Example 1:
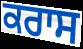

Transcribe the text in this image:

ਕਰਾਸ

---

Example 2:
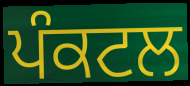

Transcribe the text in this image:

ਪੰਕਟਲ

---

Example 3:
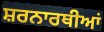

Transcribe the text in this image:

ਸ਼ਰਨਾਰਥੀਆਂ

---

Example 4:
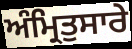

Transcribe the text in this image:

ਅੰਮ੍ਰਿਤੁਸਾਰੇ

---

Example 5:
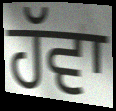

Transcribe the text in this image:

ਹੱਵਾ